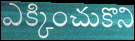
ఎక్కించుకొని